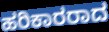
ಹರಿಕಾರರಾದ